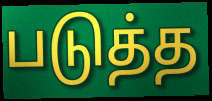
படுத்த